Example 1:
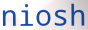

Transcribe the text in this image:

niosh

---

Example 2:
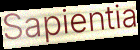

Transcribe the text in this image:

Sapientia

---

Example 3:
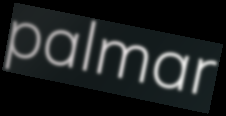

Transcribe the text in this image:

palmar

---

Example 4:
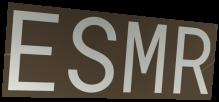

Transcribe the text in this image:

ESMR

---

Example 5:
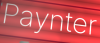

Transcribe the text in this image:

Paynter